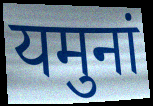
यमुनां